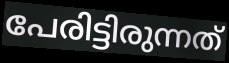
പേരിട്ടിരുന്നത്